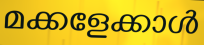
മക്കളേക്കാൾ